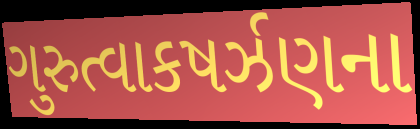
ગુરુત્વાકષર્ઝણના